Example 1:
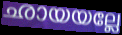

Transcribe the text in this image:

ഛായയല്ലേ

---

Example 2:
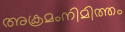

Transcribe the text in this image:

അക്രമംനിമിത്തം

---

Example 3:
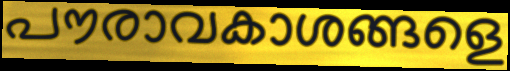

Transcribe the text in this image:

പൗരാവകാശങ്ങളെ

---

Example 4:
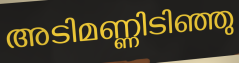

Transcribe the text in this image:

അടിമണ്ണിടിഞ്ഞു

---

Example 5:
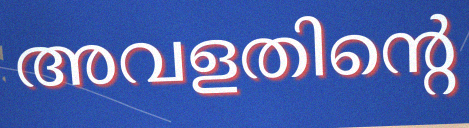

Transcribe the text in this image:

അവളതിന്റെ